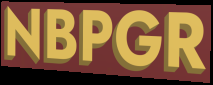
NBPGR